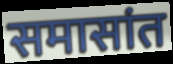
समासांत